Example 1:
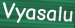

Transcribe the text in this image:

Vyasalu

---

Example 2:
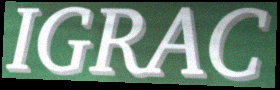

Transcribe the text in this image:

IGRAC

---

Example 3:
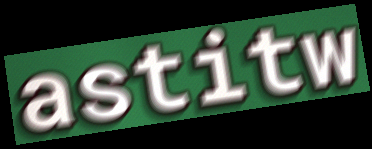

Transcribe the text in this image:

astitw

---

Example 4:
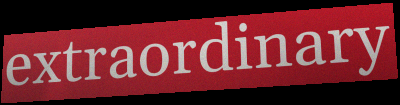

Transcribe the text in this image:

extraordinary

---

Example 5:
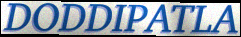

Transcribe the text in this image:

DODDIPATLA